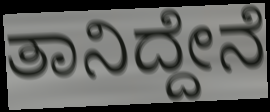
ತಾನಿದ್ದೇನೆ